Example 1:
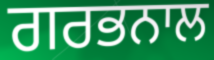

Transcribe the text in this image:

ਗਰਭਨਾਲ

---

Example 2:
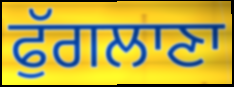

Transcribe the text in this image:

ਫੁੱਗਲਾਣਾ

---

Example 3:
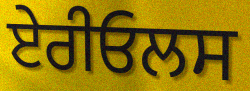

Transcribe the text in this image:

ਏਰੀਓਲਸ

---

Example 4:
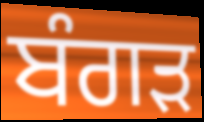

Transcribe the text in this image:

ਬੰਗੜ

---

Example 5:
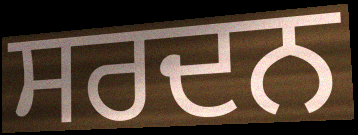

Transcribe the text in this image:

ਸਰਦਨ